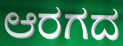
ಆರಗದ